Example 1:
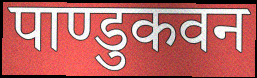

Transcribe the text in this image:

पाण्डुकवन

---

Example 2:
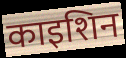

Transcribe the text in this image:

काइशिन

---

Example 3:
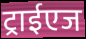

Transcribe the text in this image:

ट्राईएज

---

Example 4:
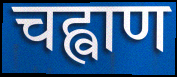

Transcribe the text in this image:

चह्वाण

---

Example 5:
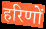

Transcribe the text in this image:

हरिणों